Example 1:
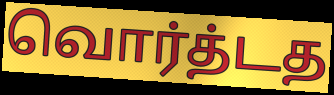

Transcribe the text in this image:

வொர்த்டத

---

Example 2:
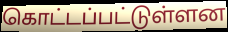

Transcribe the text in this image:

கொட்டப்பட்டுள்ளன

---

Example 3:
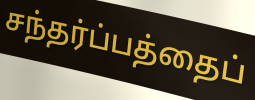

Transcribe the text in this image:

சந்தர்ப்பத்தைப்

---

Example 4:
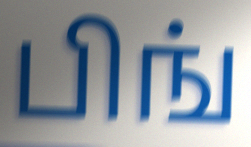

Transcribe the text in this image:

பிங்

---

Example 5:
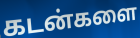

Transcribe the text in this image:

கடன்களை